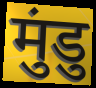
मुंडु